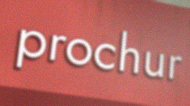
prochur